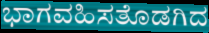
ಭಾಗವಹಿಸತೊಡಗಿದ